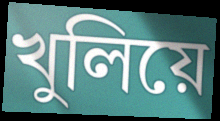
খুলিয়ে